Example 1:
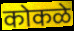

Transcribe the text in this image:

कोकळे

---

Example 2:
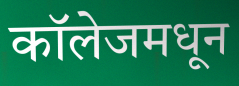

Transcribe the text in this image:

कॉलेजमधून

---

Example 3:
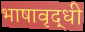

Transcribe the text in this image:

भाषावृद्धी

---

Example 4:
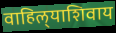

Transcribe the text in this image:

वाहिल्याशिवाय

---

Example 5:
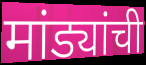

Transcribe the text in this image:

मांड्यांची